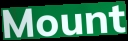
Mount